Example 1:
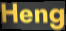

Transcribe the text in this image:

Heng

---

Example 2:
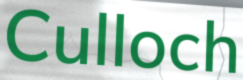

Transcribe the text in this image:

Culloch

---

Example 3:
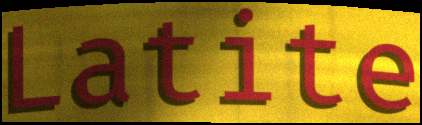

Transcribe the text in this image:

Latite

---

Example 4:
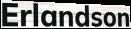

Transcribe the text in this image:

Erlandson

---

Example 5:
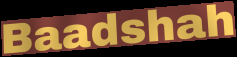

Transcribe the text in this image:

Baadshah